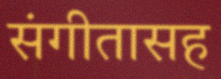
संगीतासह